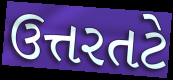
ઉત્તરતટે